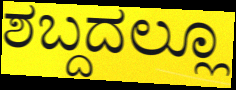
ಶಬ್ದದಲ್ಲೂ